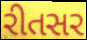
રીતસર